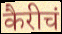
कैरीचं